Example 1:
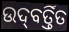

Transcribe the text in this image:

ଉଦ୍‌ବର୍ତ୍ତିତ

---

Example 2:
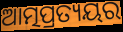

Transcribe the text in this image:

ଆତ୍ମପ୍ରତ୍ୟୟର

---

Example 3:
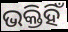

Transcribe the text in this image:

ଭକ୍ତିହିଁ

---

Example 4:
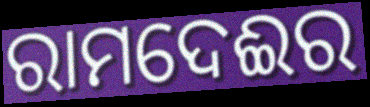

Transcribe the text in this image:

ରାମଦେଈର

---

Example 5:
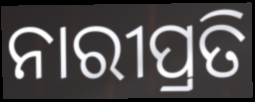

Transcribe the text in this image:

ନାରୀପ୍ରତି